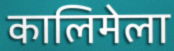
कालिमेला